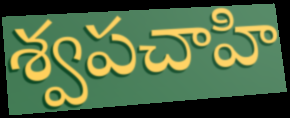
శ్వపచాహి